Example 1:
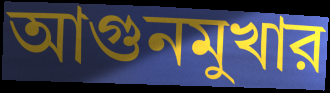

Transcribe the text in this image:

আগুনমুখার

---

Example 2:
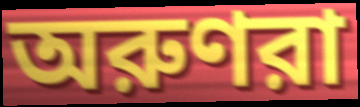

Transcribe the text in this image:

অরুণরা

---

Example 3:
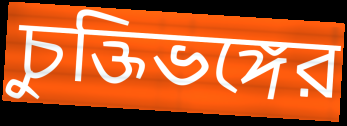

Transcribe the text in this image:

চুক্তিভঙ্গের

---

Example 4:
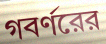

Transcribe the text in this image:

গবর্ণরের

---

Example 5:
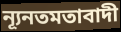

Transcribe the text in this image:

ন্যূনতমতাবাদী